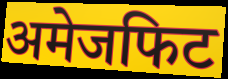
अमेजफिट